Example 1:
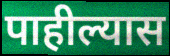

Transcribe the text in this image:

पाहील्यास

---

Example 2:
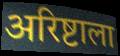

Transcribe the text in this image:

अरिष्टाला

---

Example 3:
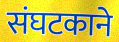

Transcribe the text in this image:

संघटकाने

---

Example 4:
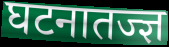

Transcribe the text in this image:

घटनातज्ज्ञ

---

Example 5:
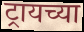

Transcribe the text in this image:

ट्रायच्या